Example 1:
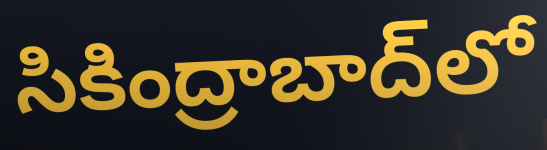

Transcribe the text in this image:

సికింద్రాబాద్‌లో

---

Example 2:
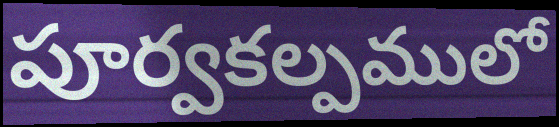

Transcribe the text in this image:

పూర్వకల్పములో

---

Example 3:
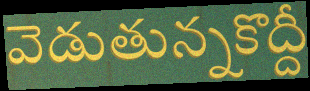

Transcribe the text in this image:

వెడుతున్నకొద్దీ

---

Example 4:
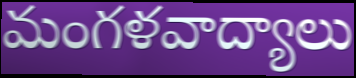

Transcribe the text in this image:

మంగళవాద్యాలు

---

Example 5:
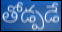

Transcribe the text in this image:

తోడ్పడే